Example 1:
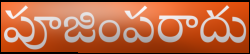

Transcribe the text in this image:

పూజింపరాదు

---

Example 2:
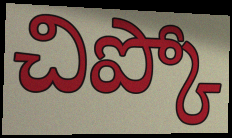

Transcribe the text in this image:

చిప్కో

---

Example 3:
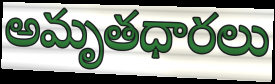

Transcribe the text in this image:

అమృతధారలు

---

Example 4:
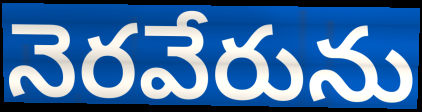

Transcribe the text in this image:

నెరవేరును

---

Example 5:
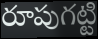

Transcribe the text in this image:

రూపుగట్టి